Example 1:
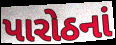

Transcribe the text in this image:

પારોઠનાં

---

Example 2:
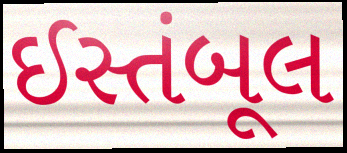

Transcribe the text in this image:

ઈસ્તંબૂલ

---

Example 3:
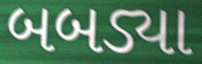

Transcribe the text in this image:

બબડ્યા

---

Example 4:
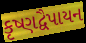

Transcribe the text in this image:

કૃષ્ણદ્વૈપાયન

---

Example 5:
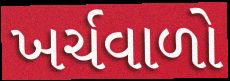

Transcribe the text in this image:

ખર્ચવાળો